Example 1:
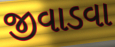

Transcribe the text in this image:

જીવાડવા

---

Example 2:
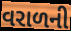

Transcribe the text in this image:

વરાળની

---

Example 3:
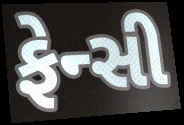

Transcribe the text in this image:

ફેન્સી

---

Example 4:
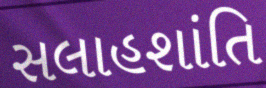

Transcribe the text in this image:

સલાહશાંતિ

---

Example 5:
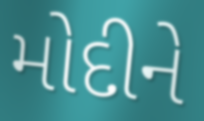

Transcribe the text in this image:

મોદીને